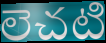
లెచటి